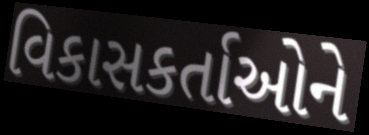
વિકાસકર્તાઓને